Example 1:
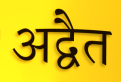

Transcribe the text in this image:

अद्वैत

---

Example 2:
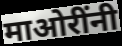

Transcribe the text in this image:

माओरींनी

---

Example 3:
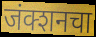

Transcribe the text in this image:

जंक्शनचा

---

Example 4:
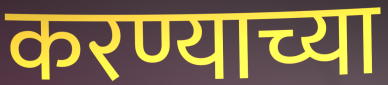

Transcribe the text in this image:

करण्याच्या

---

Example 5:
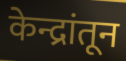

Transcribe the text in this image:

केन्द्रांतून